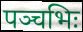
पञ्चभिः